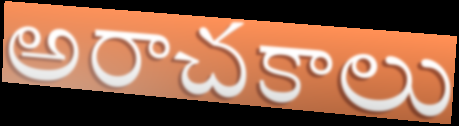
అరాచకాలు